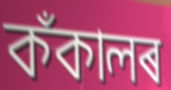
কঁকালৰ